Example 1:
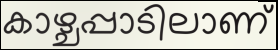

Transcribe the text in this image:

കാഴ്ചപ്പാടിലാണ്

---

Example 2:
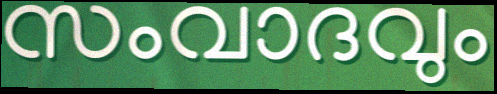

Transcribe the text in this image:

സംവാദവും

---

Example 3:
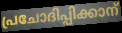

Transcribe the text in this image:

പ്രചോദിപ്പിക്കാന്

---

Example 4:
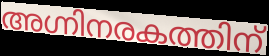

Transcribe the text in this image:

അഗ്നിനരകത്തിന്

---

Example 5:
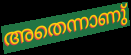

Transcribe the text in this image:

അതെന്നാണു്